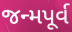
જન્મપૂર્વ